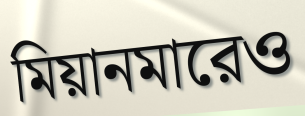
মিয়ানমারেও